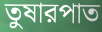
তুষারপাত